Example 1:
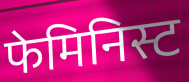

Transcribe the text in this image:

फेमिनिस्ट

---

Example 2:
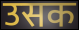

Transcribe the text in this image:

उसक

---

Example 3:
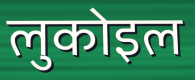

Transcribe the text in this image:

लुकोइल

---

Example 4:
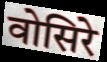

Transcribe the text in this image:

वोसिरे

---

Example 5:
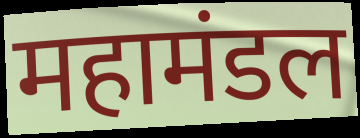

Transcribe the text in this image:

महामंडल